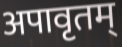
अपावृतम्